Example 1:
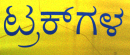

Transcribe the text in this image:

ಟ್ರಕ್‌ಗಳ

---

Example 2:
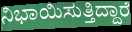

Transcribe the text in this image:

ನಿಭಾಯಿಸುತ್ತಿದ್ದಾರೆ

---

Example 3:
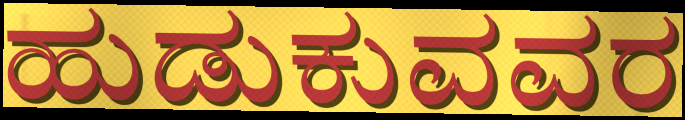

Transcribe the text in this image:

ಹುಡುಕುವವರ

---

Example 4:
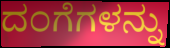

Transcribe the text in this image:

ದಂಗೆಗಳನ್ನು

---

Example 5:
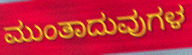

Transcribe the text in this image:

ಮುಂತಾದುವುಗಳ